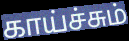
காய்ச்சும்